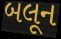
બલૂન